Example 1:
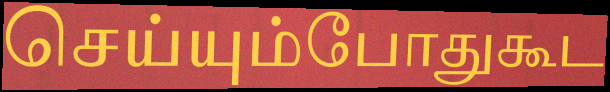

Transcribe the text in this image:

செய்யும்போதுகூட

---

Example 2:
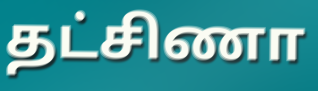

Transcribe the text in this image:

தட்சிணா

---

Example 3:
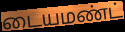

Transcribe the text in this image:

டையமண்ட்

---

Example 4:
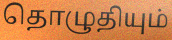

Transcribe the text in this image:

தொழுதியும்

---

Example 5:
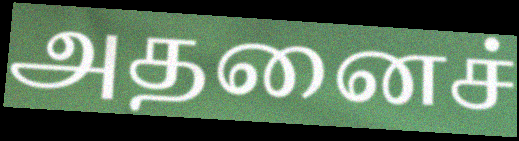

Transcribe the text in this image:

அதனைச்